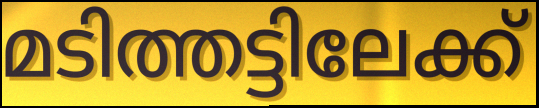
മടിത്തട്ടിലേക്ക്